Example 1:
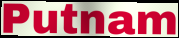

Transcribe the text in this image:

Putnam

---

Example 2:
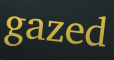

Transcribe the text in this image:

gazed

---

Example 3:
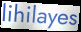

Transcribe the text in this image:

lihilayes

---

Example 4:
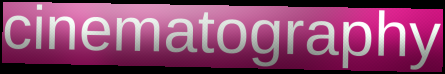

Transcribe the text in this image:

cinematography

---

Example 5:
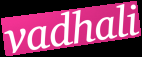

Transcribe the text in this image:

vadhali